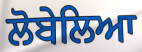
ਲੋਬੇਲਿਆ